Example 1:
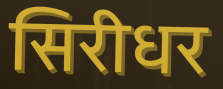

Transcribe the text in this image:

सिरीधर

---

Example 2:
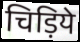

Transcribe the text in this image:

चिड़िये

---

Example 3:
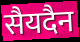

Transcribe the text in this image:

सैयदैन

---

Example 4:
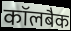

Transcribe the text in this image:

कॉलबैक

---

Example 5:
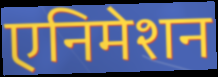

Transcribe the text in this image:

एनिमेशन